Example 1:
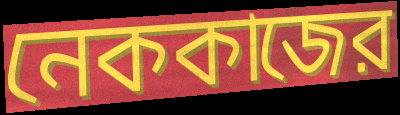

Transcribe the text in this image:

নেককাজের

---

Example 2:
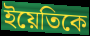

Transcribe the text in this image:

ইয়েতিকে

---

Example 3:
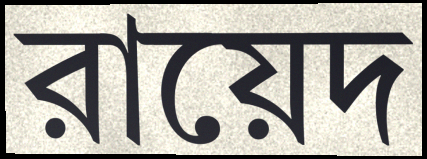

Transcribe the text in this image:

রায়েদ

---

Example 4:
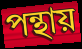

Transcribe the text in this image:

পন্থায়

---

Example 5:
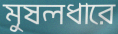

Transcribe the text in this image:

মুষলধারে